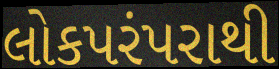
લોકપરંપરાથી